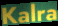
Kalra